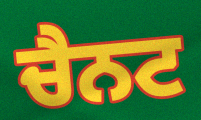
ਚੈਨਟ